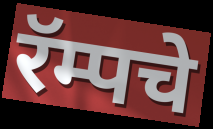
रॅम्पचे